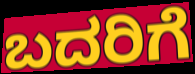
ಬದರಿಗೆ